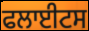
ਫਲਾਈਟਸ